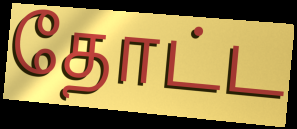
தோட்ட